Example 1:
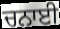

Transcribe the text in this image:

ਚਨਾਈ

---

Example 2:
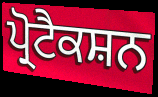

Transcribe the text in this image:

ਪ੍ਰੋਟੈਕਸ਼ਨ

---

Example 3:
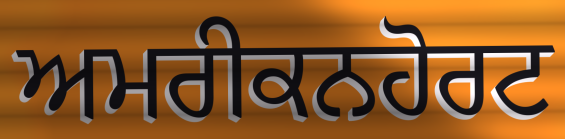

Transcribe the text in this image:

ਅਮਰੀਕਨਹੋਰਟ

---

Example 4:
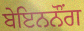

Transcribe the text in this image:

ਬੇਇਨਨੌੰਗ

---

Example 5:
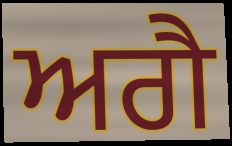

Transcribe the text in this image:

ਅਗੈ